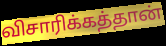
விசாரிக்கத்தான்